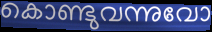
കൊണ്ടുവന്നുവോ